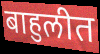
बाहुलीत